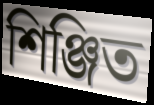
শিঞ্জিত